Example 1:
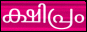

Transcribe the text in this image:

ക്ഷിപ്രം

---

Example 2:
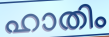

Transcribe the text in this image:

ഹാതിം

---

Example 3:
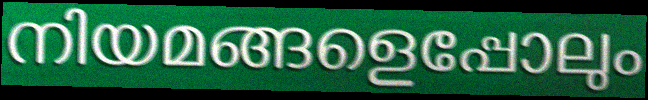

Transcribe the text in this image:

നിയമങ്ങളെപ്പോലും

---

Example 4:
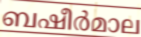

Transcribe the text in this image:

ബഷീർമാല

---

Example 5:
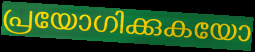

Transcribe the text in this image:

പ്രയോഗിക്കുകയോ